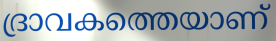
ദ്രാവകത്തെയാണ്